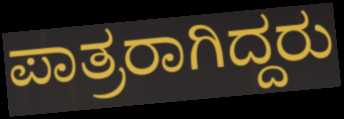
ಪಾತ್ರರಾಗಿದ್ದರು